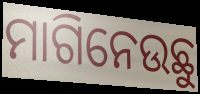
ମାଗିନେଉଛୁ